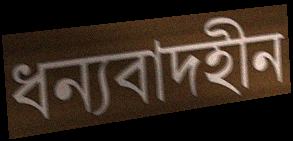
ধন্যবাদহীন